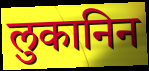
लुकानिन